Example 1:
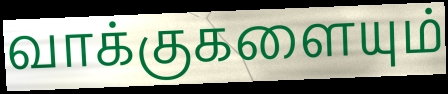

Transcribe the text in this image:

வாக்குகளையும்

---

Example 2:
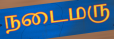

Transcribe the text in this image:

நடைமரு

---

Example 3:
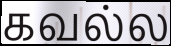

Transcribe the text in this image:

கவல்ல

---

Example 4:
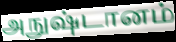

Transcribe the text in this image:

அநுஷ்டானம்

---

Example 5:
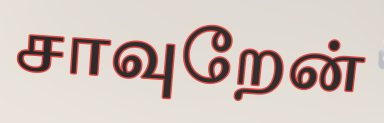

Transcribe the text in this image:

சாவுறேன்